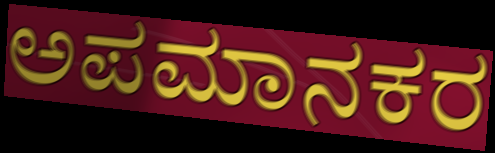
ಅಪಮಾನಕರ